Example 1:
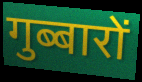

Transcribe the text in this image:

गुब्बारों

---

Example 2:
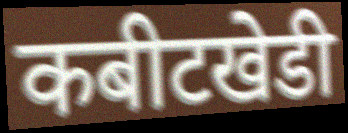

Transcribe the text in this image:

कबीटखेडी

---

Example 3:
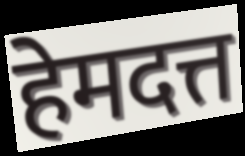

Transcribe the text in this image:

हेमदत्त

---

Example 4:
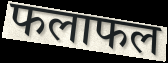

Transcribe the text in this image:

फलाफल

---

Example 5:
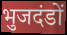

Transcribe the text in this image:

भुजदंडों